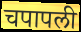
चपापली